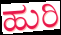
ಹುರಿ